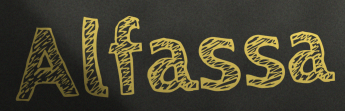
Alfassa